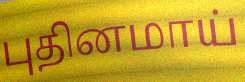
புதினமாய்